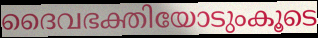
ദൈവഭക്തിയോടുംകൂടെ